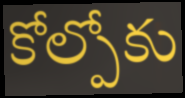
కోల్పోకు